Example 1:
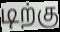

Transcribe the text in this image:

டிற்கு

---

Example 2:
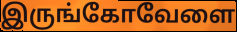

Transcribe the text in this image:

இருங்கோவேளை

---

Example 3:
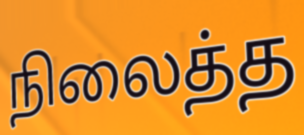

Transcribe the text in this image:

நிலைத்த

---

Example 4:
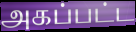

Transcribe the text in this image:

அகப்பட்ட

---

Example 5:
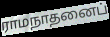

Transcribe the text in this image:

ராமநாதனைப்